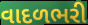
વાદળભરી